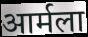
आर्मला